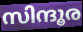
സിന്ദൂര